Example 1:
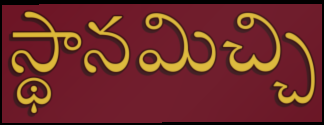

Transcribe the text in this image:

స్థానమిచ్చి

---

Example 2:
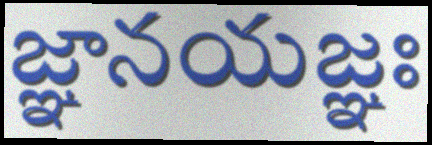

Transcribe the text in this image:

జ్ఞానయజ్ఞః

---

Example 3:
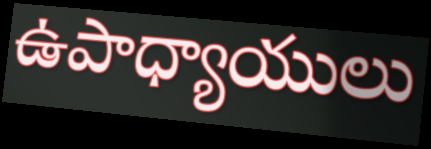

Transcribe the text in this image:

ఉపాధ్యాయులు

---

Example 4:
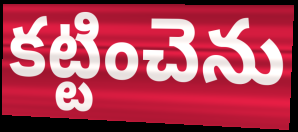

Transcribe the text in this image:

కట్టించెను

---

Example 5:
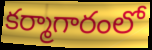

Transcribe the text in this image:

కర్మాగారంలో